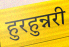
हुरहुन्नरी